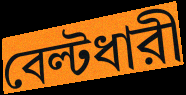
বেল্টধারী